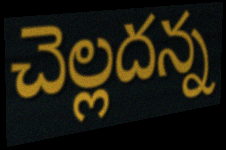
చెల్లదన్న